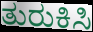
ತುರುಕಿಸಿ